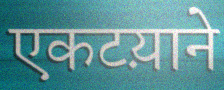
एकटय़ाने